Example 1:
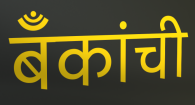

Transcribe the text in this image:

बॅँकांची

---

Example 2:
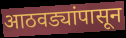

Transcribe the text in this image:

आठवड्यांपासून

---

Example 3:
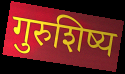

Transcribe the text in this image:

गुरुशिष्य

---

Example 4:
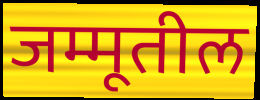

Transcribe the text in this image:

जम्मूतील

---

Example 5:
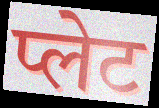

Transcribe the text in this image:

प्लेट